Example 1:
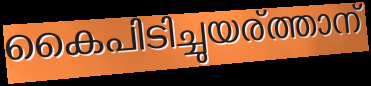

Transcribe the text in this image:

കൈപിടിച്ചുയര്ത്താന്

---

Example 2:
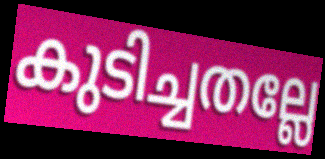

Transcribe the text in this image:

കുടിച്ചതല്ലേ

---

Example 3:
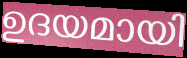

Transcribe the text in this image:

ഉദയമായി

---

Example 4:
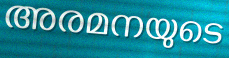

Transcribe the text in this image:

അരമനയുടെ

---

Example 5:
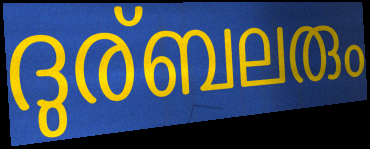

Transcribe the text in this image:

ദുര്ബലരും